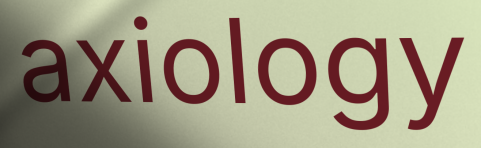
axiology